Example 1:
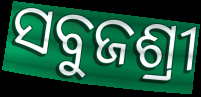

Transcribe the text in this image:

ସବୁଜଶ୍ରୀ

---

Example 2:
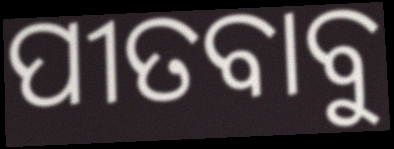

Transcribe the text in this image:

ପୀତବାବୁ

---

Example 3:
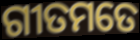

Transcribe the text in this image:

ଗୀତମତେ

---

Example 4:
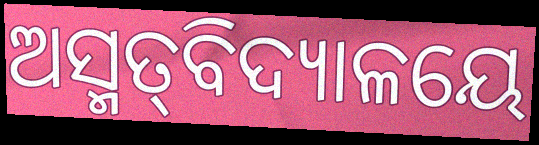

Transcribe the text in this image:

ଅସ୍ମତ୍‌ବିଦ୍ୟାଳୟେ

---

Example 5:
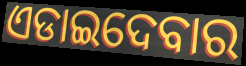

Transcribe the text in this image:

ଏଡାଇଦେବାର